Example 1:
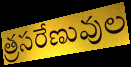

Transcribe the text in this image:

త్రసరేణువుల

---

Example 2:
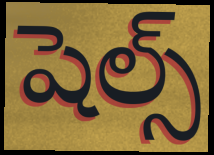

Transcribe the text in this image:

షెల్స్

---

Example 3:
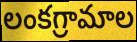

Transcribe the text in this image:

లంకగ్రామాల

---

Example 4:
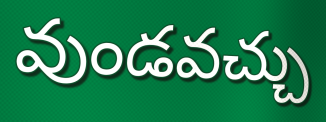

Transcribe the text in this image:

వుండవచ్చు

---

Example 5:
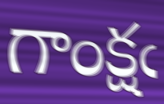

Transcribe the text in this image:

గాంక్షఁ